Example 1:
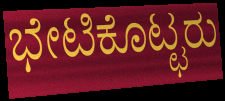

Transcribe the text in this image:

ಭೇಟಿಕೊಟ್ಟರು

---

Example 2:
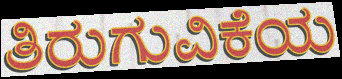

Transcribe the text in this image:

ತಿರುಗುವಿಕೆಯ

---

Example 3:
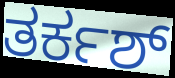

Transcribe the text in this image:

ತರ್ಕಶ್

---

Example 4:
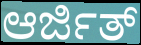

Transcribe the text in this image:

ಆರ್ಜಿತ್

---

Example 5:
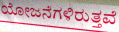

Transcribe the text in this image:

ಯೋಜನೆಗಳಿರುತ್ತವೆ